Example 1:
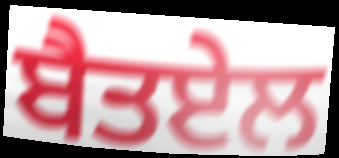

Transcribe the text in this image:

ਬੈਤਏਲ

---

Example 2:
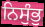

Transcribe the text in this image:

ਨਿਸੁੰਭੁ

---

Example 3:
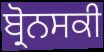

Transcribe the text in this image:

ਬ੍ਰੋਨਸਕੀ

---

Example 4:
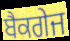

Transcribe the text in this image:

ਬੈਕਗੇਜ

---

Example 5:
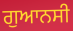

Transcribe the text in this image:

ਗੁਆਨਸੀ